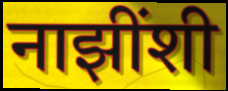
नाझींशी